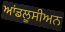
ਆਂਡਲੂਸੀਅਨ